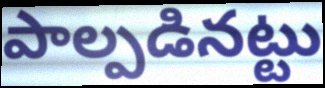
పాల్పడినట్టు